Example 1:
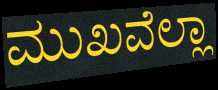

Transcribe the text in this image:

ಮುಖವೆಲ್ಲಾ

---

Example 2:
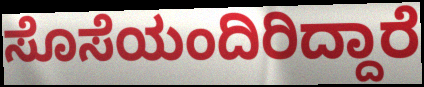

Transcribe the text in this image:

ಸೊಸೆಯಂದಿರಿದ್ದಾರೆ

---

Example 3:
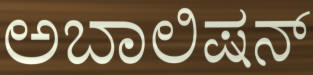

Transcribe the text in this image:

ಅಬಾಲಿಷನ್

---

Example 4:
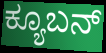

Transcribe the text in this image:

ಕ್ಯೂಬನ್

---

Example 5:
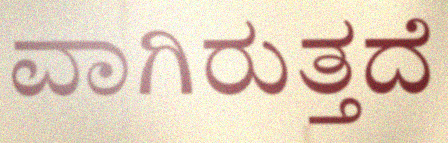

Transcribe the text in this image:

ವಾಗಿರುತ್ತದೆ